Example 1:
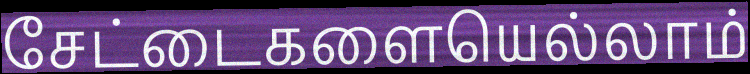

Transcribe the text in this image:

சேட்டைகளையெல்லாம்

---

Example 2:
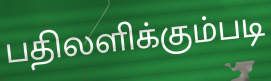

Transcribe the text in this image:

பதிலளிக்கும்படி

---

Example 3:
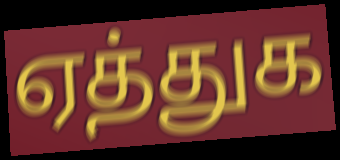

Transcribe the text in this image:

ஏத்துக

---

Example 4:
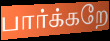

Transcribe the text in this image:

பார்க்கறே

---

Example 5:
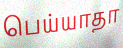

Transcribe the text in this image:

பெய்யாதா